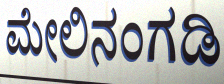
ಮೇಲಿನಂಗಡಿ